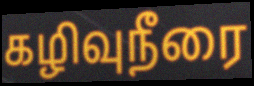
கழிவுநீரை